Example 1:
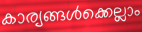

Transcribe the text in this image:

കാര്യങ്ങൾക്കെല്ലാം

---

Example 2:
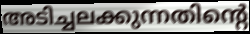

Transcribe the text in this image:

അടിച്ചലക്കുന്നതിന്റെ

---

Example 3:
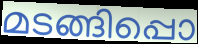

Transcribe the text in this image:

മടങ്ങിപ്പൊ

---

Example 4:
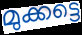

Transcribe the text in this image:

മുക്കട്ടെ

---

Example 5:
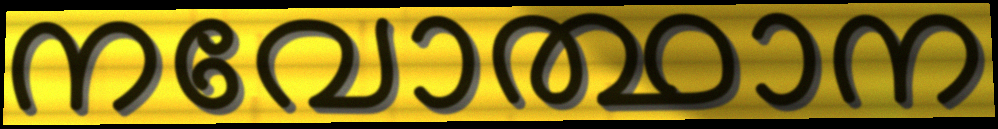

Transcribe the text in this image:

നവോത്ഥാന